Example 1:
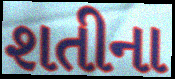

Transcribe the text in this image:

શતીના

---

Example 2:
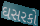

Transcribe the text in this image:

ઘસરકો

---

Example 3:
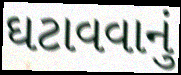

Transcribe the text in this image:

ઘટાવવાનું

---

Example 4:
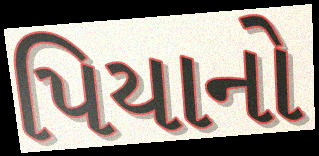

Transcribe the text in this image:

પિયાનો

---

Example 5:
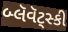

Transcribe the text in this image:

બ્લૅવૅટ્સ્કી